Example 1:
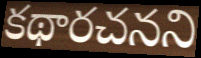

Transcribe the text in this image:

కథారచనని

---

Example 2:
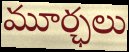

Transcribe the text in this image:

మూర్ఛలు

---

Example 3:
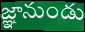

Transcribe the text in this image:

జ్ఞానుండు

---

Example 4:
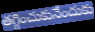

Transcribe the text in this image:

తగ్గించుకునేందుకు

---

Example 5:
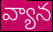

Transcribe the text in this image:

వ్యాన